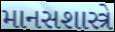
માનસશાસ્ત્રે